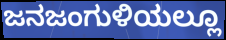
ಜನಜಂಗುಳಿಯಲ್ಲೂ